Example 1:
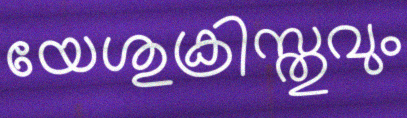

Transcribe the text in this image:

യേശുക്രിസ്തുവും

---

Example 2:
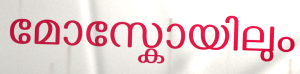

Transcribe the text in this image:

മോസ്കോയിലും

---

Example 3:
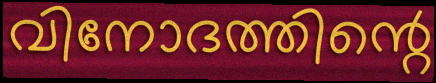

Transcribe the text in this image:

വിനോദത്തിന്റെ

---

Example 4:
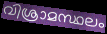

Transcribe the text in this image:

വിശ്രാമസ്ഥലം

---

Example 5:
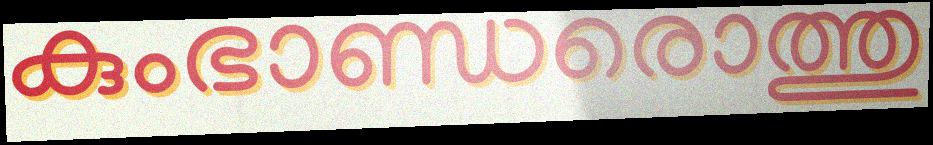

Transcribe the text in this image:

കുംഭാണ്ഡരൊത്തു